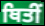
ਥਿਤੀਂ